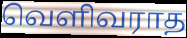
வெளிவராத